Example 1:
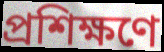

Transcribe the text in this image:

প্রশিক্ষণে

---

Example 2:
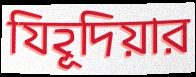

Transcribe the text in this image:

যিহূদিয়ার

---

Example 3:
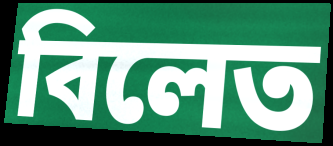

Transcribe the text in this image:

বিলেত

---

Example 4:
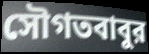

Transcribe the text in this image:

সৌগতবাবুর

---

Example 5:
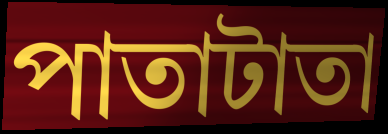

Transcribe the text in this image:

পাতাটাতা